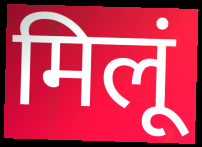
मिलूं